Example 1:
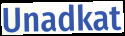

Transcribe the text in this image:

Unadkat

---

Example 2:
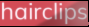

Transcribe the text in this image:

hairclips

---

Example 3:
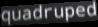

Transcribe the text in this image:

quadruped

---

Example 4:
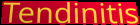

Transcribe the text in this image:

Tendinitis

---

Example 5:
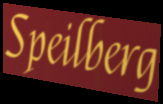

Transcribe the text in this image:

Speilberg